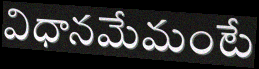
విధానమేమంటే